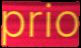
prio